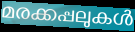
മരക്കപ്പലുകൾ